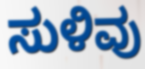
ಸುಳಿವು